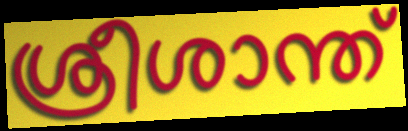
ശ്രീശാന്ത്